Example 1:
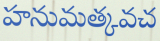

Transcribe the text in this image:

హనుమత్కవచ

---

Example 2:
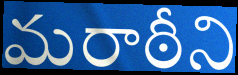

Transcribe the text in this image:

మరాఠీని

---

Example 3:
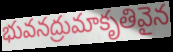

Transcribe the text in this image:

భువనద్రుమాకృతివైన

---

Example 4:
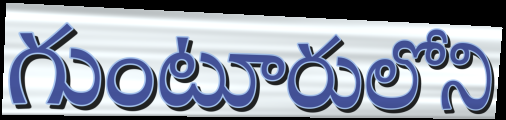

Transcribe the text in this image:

గుంటూరులోని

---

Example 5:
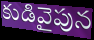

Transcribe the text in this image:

కుడివైపున